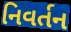
નિવર્તન